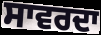
ਸਾਵਰਦਾ